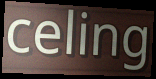
celing